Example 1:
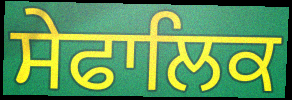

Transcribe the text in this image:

ਸੇਫਾਲਿਕ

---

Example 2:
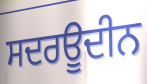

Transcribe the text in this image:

ਸਦਰਊਦੀਨ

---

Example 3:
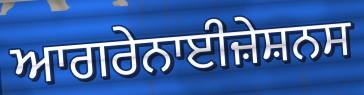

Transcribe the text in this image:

ਆਗਰੇਨਾਈਜ਼ੇਸ਼ਨਸ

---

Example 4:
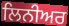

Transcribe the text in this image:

ਲਿਨੀਅਰ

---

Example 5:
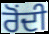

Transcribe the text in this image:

ਰੋਂਦੀ